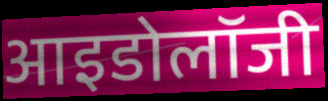
आइडोलॉजी